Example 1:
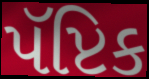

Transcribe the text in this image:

પૅપ્ટિક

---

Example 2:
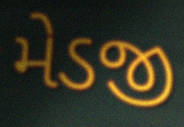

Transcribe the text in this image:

મેડજી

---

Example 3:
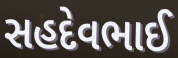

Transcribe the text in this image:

સહદેવભાઈ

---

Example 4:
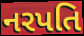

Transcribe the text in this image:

નરપતિ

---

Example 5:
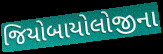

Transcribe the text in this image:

જિયોબાયોલોજીના